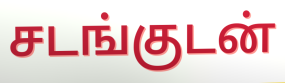
சடங்குடன்